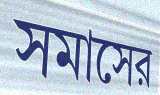
সমাসের